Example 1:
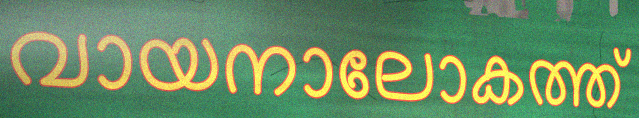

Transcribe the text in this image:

വായനാലോകത്ത്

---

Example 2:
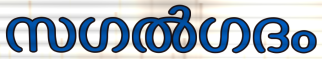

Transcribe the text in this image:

സഗൽഗദം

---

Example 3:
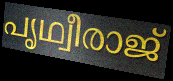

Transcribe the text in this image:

പൃഥ്വീരാജ്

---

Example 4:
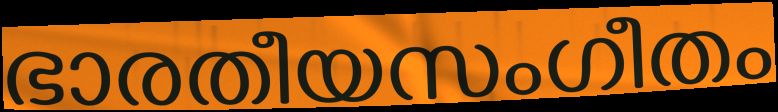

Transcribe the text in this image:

ഭാരതീയസംഗീതം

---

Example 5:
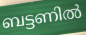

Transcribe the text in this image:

ബട്ടണിൽ